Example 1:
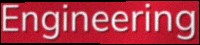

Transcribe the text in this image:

Engineering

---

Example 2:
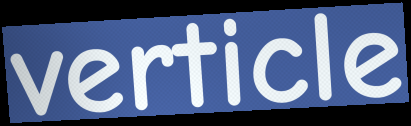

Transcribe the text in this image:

verticle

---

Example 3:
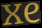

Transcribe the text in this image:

xe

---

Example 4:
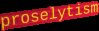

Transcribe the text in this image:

proselytism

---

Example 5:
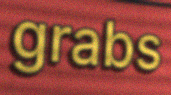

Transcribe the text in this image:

grabs